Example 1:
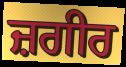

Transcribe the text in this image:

ਜ਼ਗੀਰ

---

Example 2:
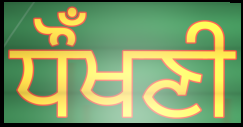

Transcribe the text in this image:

ਧੌਁਖਣੀ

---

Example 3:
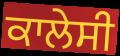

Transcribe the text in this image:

ਕਾਲੇਸੀ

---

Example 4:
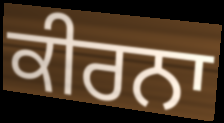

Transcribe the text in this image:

ਕੀਰਨਾ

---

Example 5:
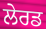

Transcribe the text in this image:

ਲੇਰਡ